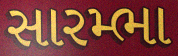
સારમ્ભા